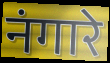
नंगारे